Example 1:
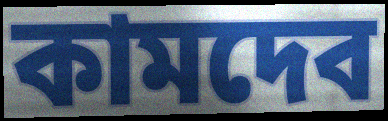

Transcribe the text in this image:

কামদেব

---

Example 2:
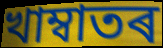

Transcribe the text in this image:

খাম্বাতৰ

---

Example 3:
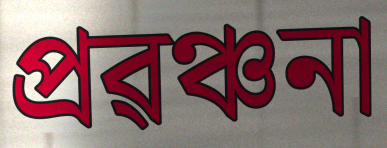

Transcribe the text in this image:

প্ৰৱঞ্চনা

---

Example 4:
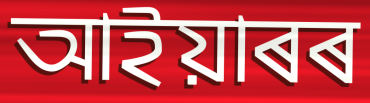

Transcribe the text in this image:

আইয়াৰৰ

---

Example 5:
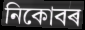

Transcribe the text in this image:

নিকোবৰ